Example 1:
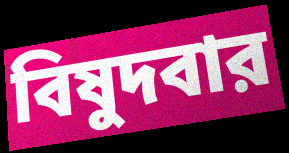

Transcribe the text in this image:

বিষুদবার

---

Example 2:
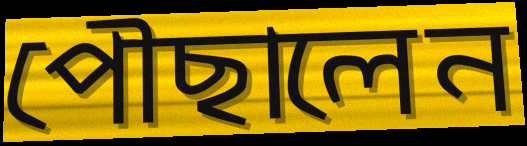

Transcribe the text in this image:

পৌছালেন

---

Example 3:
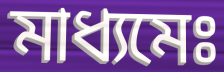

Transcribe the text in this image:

মাধ্যমেঃ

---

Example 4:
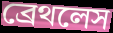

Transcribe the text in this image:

ব্রেথলেস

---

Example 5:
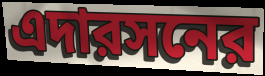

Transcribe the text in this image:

এদারসনের